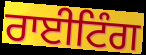
ਰਾਈਟਿੰਗ